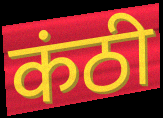
कंठी